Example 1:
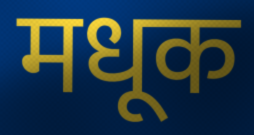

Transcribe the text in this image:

मधूक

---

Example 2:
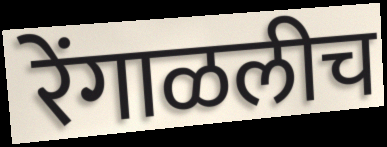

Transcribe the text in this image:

रेंगाळलीच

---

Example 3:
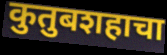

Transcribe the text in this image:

कुतुबशहाचा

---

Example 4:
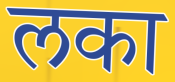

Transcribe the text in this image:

लका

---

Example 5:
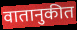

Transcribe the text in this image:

वातानुकीत